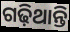
ଗଢ଼ିଥାନ୍ତି